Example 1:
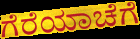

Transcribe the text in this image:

ಗೆರೆಯಾಚೆಗೆ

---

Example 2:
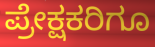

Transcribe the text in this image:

ಪ್ರೇಕ್ಷಕರಿಗೂ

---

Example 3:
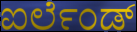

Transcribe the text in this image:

ಐರ್ಲೆಂಡ್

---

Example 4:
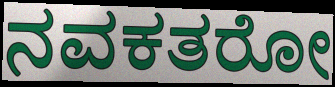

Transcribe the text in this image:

ನವಕತರೋ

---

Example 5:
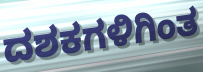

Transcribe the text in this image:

ದಶಕಗಳಿಗಿಂತ